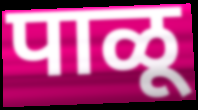
पाळू